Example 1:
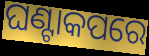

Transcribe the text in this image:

ଘଣ୍ଟାକପରେ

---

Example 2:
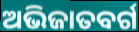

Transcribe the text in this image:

ଅଭିଜାତବର୍ଗ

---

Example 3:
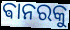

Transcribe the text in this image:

ଵାନରକୁ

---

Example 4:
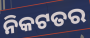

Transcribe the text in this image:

ନିକଟତର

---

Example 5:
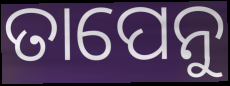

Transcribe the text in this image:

ତାପେନୁ